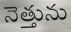
నెత్తును